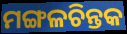
ମଙ୍ଗଳଚିନ୍ତକ